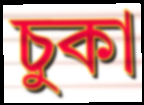
চুকা